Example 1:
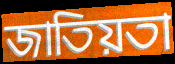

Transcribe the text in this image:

জাতিয়তা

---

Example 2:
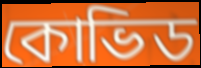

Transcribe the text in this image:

কোভিড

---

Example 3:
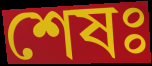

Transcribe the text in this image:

শেষঃ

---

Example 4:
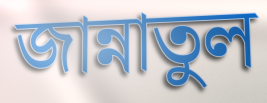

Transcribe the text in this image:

জান্নাতুল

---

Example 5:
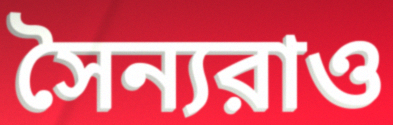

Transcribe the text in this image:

সৈন্যরাও